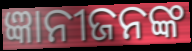
ଜ୍ଞାନୀଜନଙ୍କ